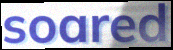
soared